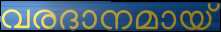
വരദാനമായ്